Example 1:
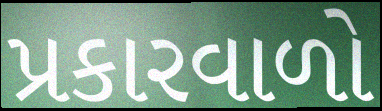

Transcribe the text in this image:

પ્રકારવાળો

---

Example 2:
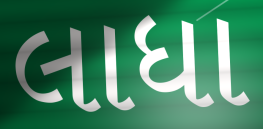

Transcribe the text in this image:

લાધા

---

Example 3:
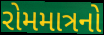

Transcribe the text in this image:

રોમમાત્રનો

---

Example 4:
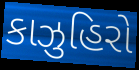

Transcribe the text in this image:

કાઝુહિરો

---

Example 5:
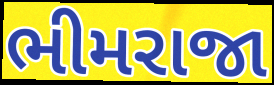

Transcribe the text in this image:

ભીમરાજા